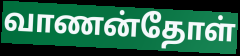
வாணன்தோள்